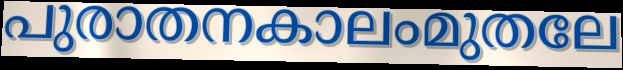
പുരാതനകാലംമുതലേ